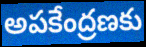
అపకేంద్రణకు